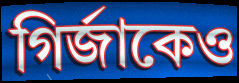
গির্জাকেও